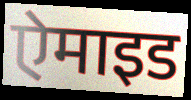
ऐमाइड